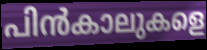
പിൻകാലുകളെ